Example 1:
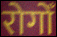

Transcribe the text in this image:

रोगोँ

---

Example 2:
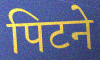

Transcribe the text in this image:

पिटने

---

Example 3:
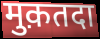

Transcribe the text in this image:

मुक़तदा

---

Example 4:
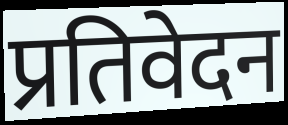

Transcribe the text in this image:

प्रतिवेदन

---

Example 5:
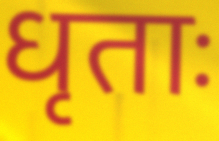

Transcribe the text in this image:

धृताः